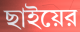
ছাইয়ের